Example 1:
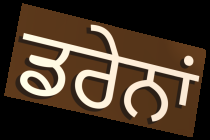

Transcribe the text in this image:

ਡਰੇਨਾਂ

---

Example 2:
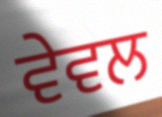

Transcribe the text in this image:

ਵੇਵਲ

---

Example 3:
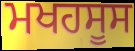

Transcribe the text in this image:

ਮਖਹਸੂਸ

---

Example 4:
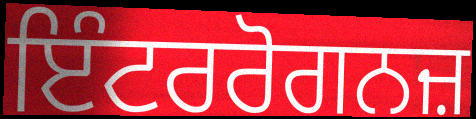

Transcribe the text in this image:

ਇੰਟਰਰੋਗਨਜ਼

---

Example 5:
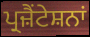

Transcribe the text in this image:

ਪ੍ਰਜ਼ੈਂਟੇਸ਼ਨਾਂ